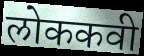
लोककवी